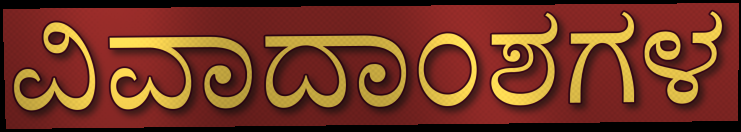
ವಿವಾದಾಂಶಗಳ